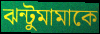
ঝন্টুমামাকে